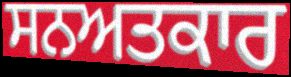
ਸਨਅਤਕਾਰ